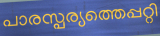
പാരസ്പര്യത്തെപ്പറ്റി